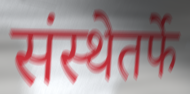
संस्थेतर्फे